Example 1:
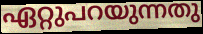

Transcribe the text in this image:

ഏറ്റുപറയുന്നതു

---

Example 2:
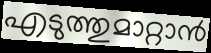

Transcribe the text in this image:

എടുത്തുമാറ്റാൻ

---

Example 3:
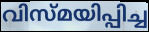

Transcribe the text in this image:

വിസ്മയിപ്പിച്ച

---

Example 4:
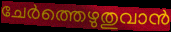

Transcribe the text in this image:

ചേർത്തെഴുതുവാൻ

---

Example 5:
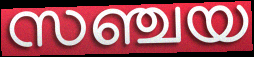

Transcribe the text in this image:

സഞ്ചയ